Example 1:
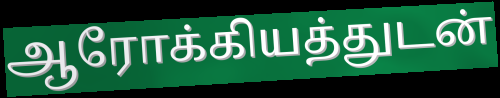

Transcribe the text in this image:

ஆரோக்கியத்துடன்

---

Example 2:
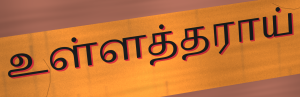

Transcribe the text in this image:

உள்ளத்தராய்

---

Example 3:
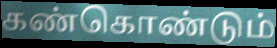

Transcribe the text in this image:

கண்கொண்டும்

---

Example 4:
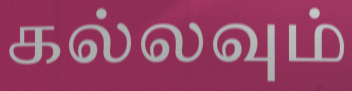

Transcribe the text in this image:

கல்லவும்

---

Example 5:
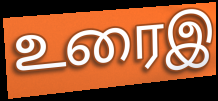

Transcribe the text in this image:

உரைஇ